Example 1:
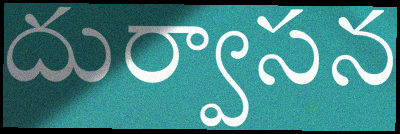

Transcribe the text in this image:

దుర్వాసన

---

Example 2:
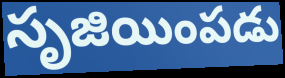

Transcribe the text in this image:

సృజియింపడు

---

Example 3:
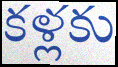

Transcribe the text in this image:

కళ్లకు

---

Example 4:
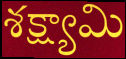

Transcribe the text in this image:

శక్ష్యామి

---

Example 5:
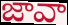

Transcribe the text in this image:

జావా